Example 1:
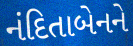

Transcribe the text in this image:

નંદિતાબેનને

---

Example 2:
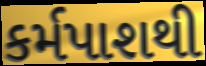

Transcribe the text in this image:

કર્મપાશથી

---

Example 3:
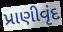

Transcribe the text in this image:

પ્રાણીવૃંદ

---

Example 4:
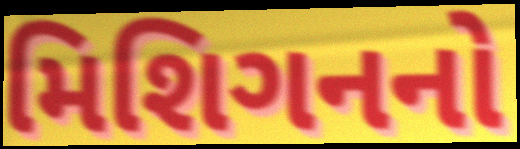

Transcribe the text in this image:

મિશિગનનો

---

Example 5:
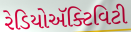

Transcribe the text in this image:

રેડિયોઍક્ટિવિટી